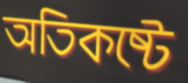
অতিকষ্টে